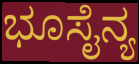
ಭೂಸೈನ್ಯ